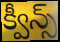
క్వీన్స్